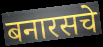
बनारसचे